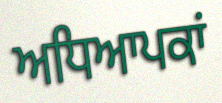
ਅਧਿਆਪਕਾਂ